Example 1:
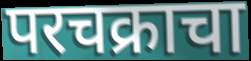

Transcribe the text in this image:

परचक्राचा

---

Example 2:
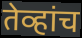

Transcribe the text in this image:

तेव्हांच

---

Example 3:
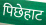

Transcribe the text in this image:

पिछेहाट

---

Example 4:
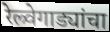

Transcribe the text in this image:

रेल्वेगाड्यांचा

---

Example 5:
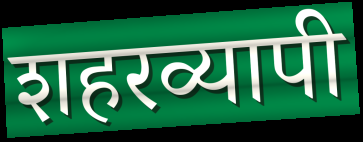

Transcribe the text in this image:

शहरव्यापी